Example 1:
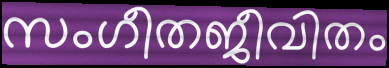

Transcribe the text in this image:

സംഗീതജീവിതം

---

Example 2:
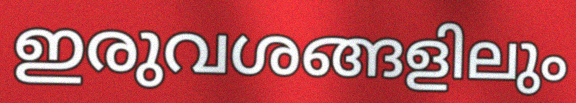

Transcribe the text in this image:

ഇരുവശങ്ങളിലും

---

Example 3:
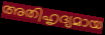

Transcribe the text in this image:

അതിഹൃദ്യമായ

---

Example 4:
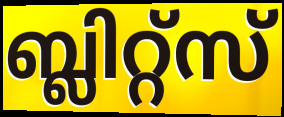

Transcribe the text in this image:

ബ്ലിറ്റ്സ്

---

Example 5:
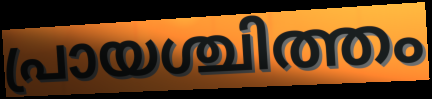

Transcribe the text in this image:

പ്രായശ്ചിത്തം